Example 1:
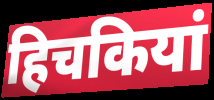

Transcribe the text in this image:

हिचकियां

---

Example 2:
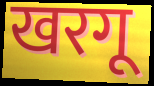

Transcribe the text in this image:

खरगू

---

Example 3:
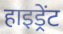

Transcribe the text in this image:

हाइड्रेंट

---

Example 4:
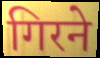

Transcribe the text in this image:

गिरने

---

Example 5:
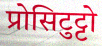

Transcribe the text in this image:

प्रोसिटुट्टो